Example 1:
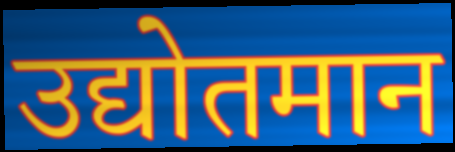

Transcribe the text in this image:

उद्योतमान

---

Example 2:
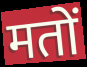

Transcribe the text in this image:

मतों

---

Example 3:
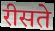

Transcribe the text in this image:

रीसते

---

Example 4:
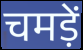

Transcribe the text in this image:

चमड़ें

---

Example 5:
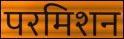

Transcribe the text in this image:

परमिशन